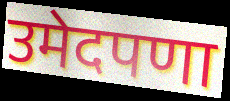
उमेदपणा